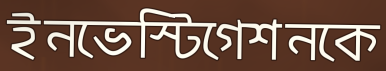
ইনভেস্টিগেশনকে